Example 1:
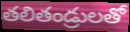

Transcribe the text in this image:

తలితండ్రులతో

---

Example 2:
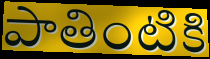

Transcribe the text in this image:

పాతింటికి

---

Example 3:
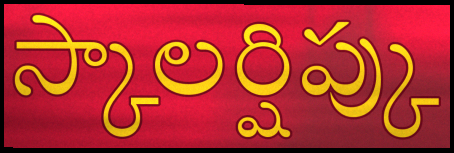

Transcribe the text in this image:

స్కాలర్షిప్కు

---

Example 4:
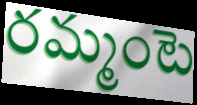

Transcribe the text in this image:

రమ్మంటె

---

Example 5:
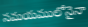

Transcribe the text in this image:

సమయములోనైనా